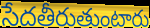
సేదతీరుతుంటారు